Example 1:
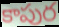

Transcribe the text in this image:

కాపుర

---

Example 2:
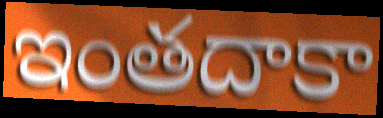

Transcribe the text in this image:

ఇంతదాకా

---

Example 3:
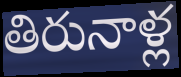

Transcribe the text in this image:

తిరునాళ్ల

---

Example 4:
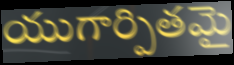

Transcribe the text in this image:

యుగార్పితమై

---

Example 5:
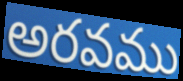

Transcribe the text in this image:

అరవము